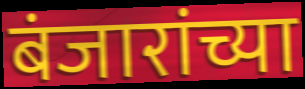
बंजारांच्या